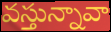
వస్తున్నావా